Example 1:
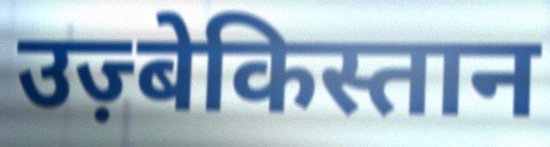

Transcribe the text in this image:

उज़्बेकिस्तान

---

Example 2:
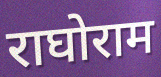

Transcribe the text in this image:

राघोराम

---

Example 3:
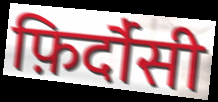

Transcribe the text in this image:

फ़िर्दौसी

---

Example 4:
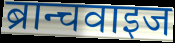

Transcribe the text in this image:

ब्रान्चवाइज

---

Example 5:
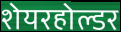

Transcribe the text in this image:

शेयरहोल्डर